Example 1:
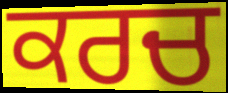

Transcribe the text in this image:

ਕਰਚ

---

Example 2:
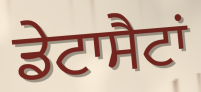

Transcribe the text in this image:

ਡੇਟਾਸੈਟਾਂ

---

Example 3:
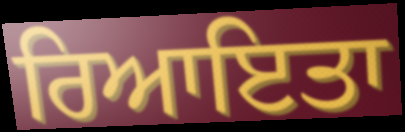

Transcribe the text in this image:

ਰਿਆਇਤਾ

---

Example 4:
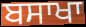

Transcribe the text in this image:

ਬਸਾਖਾ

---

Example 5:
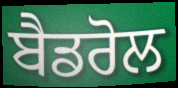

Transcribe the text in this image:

ਬੈਡਰੋਲ